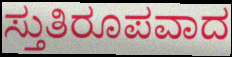
ಸ್ತುತಿರೂಪವಾದ